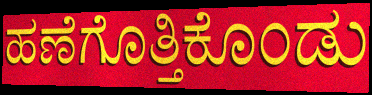
ಹಣೆಗೊತ್ತಿಕೊಂಡು